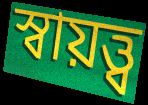
স্বায়ত্ত্ব